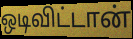
ஒடிவிட்டான்